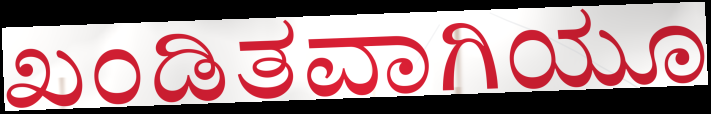
ಖಂಡಿತವಾಗಿಯೂ